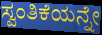
ಸ್ವಂತಿಕೆಯನ್ನೇ